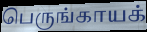
பெருங்காயக்